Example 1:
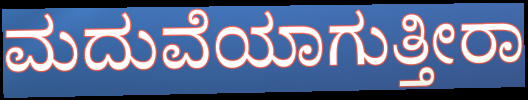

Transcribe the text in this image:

ಮದುವೆಯಾಗುತ್ತೀರಾ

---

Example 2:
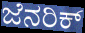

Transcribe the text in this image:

ಜೆನರಿಕ್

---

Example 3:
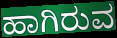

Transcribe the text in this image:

ಹಾಗಿರುವ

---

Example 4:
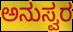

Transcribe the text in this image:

ಅನುಸ್ವರ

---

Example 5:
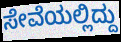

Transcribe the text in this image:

ಸೇವೆಯಲ್ಲಿದ್ದು